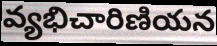
వ్యభిచారిణియన